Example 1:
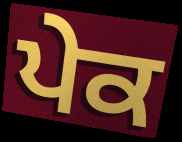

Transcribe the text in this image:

ਪੇਕ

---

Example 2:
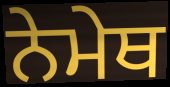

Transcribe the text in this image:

ਨੇਮੇਥ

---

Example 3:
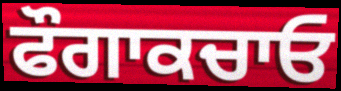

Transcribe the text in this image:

ਫੌਗਾਕਚਾਓ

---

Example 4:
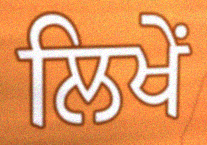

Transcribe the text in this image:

ਲਿਖੇਂ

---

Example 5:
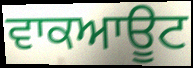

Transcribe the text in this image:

ਵਾਕਆਊਟ